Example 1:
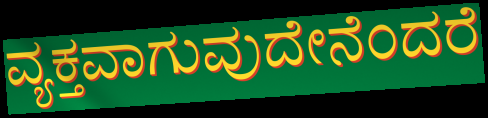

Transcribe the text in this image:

ವ್ಯಕ್ತವಾಗುವುದೇನೆಂದರೆ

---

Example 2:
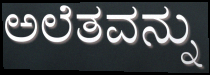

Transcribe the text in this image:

ಅಲೆತವನ್ನು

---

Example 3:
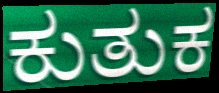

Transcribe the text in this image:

ಕುತುಕ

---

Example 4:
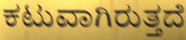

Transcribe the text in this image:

ಕಟುವಾಗಿರುತ್ತದೆ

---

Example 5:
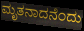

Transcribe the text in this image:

ಮೃತನಾದನೆಂದು